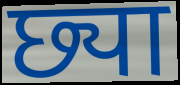
छ्या